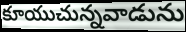
కూయుచున్నవాడును